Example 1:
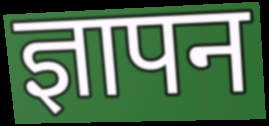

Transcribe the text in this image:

ज्ञापन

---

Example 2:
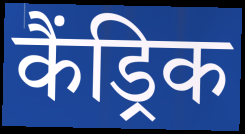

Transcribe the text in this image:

कैंड्रिक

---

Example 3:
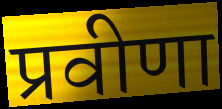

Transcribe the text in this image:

प्रवीणा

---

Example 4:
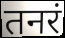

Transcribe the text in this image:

तनरं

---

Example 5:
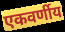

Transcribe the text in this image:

एकवर्णीय